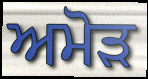
ਅਮੋੜ